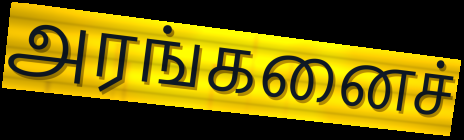
அரங்கனைச்